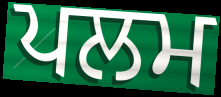
ਪਲਮ